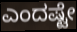
ಎಂದಷ್ಟೇ